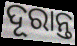
ଦୂରାନ୍ତ